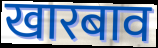
खारबाव